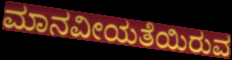
ಮಾನವೀಯತೆಯಿರುವ